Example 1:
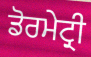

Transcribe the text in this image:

ਡੋਰਮੇਟ੍ਰੀ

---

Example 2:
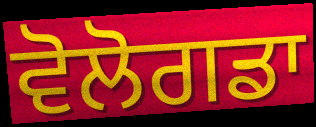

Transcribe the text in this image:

ਵੋਲੋਗਡਾ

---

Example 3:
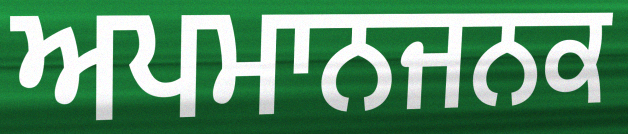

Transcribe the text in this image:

ਅਪਮਾਨਜਨਕ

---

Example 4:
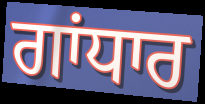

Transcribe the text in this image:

ਗਾਂਧਾਰ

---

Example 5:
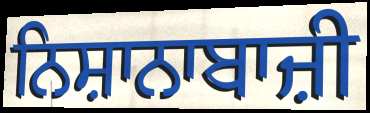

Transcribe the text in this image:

ਨਿਸ਼ਾਨਾਬਾਜ਼ੀ